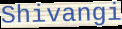
Shivangi